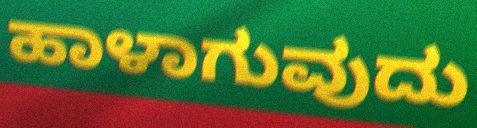
ಹಾಳಾಗುವುದು